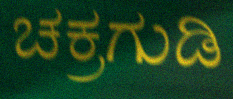
ಚಕ್ರಗುಡಿ